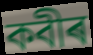
কবীৰ